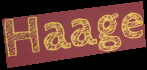
Haage